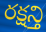
రక్షన్తి